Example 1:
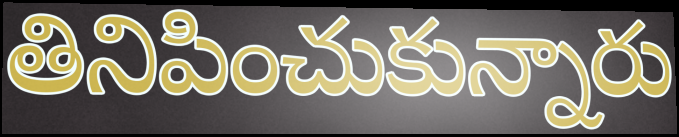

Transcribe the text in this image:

తినిపించుకున్నారు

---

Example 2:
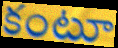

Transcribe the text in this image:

కంటూ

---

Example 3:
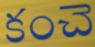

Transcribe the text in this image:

కంచె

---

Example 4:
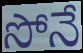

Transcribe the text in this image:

సోనే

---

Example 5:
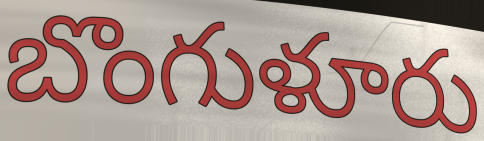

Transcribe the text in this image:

బొంగుళూరు